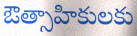
ఔత్సాహికులకు